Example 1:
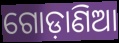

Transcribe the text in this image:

ଗୋଡ଼ାଣିଆ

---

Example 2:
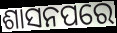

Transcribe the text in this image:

ଶାସନପରେ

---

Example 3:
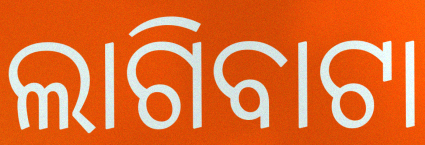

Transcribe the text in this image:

ଲାଗିବାଟା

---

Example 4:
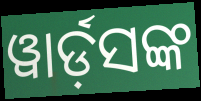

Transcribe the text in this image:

ୱାର୍ଡ଼ସଙ୍କ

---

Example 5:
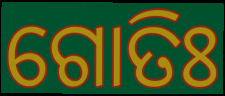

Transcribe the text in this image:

ଗୋତିଃ